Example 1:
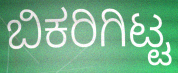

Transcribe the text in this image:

ಬಿಕರಿಗಿಟ್ಟ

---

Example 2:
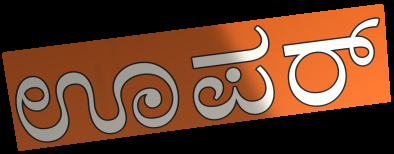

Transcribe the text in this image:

ಊಪರ್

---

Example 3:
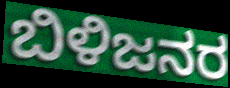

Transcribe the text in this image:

ಬಿಳಿಜನರ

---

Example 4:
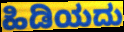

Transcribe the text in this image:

ಹಿಡಿಯದು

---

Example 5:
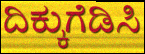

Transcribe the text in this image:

ದಿಕ್ಕುಗೆಡಿಸಿ